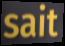
sait